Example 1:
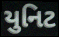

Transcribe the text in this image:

યુનિટ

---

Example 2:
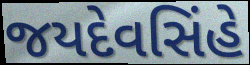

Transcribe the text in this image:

જયદેવસિંહે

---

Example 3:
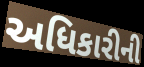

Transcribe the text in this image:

અધિકારીની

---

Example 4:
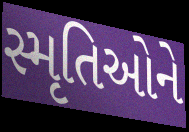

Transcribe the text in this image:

સ્મૃતિઓને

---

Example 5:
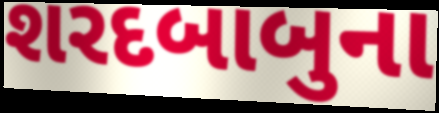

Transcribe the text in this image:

શરદબાબુના